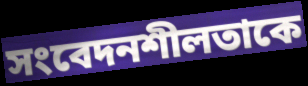
সংবেদনশীলতাকে